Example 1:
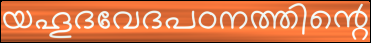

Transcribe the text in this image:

യഹൂദവേദപഠനത്തിന്റെ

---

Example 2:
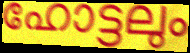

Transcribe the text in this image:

ഹോട്ടലും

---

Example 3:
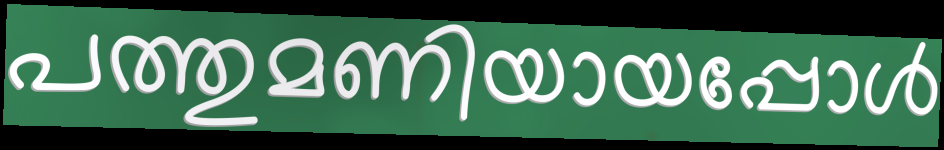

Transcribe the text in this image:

പത്തുമണിയായപ്പോൾ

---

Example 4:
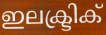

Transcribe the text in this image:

ഇലക്ട്രിക്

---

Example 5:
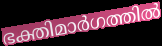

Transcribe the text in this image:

ഭക്തിമാർഗത്തിൽ